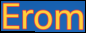
Erom